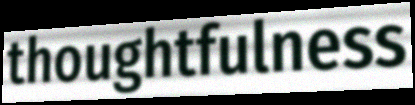
thoughtfulness